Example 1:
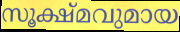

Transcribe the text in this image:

സൂക്ഷ്മവുമായ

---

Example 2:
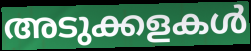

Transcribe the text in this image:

അടുക്കളകൾ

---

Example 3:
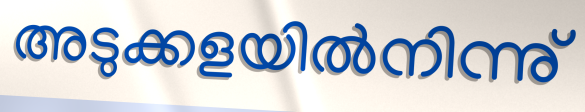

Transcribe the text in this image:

അടുക്കളയിൽനിന്നു്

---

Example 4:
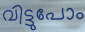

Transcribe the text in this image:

വിട്ടുപോം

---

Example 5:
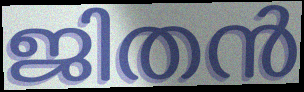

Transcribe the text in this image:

ജിതൻ